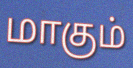
மாகும்